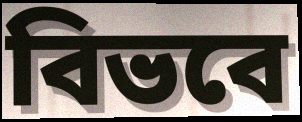
বিভবে